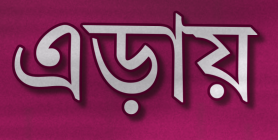
এড়ায়